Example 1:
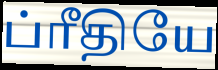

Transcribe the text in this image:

ப்ரீதியே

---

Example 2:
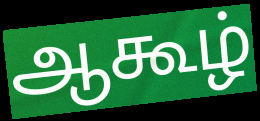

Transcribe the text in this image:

ஆகூழ்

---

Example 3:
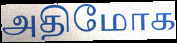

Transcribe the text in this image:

அதிமோக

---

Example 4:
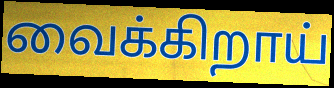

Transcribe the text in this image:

வைக்கிறாய்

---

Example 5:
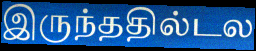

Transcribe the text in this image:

இருந்ததில்டல